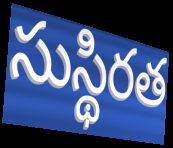
సుస్థిరత